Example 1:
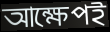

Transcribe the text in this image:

আক্ষেপই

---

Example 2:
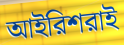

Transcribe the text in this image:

আইরিশরাই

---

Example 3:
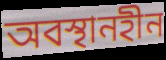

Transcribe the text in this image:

অবস্থানহীন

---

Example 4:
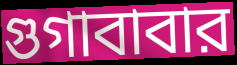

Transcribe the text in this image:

গুগাবাবার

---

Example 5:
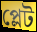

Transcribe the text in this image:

প্লেট